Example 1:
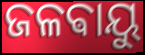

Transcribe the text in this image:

ଜଳଵାୟୁ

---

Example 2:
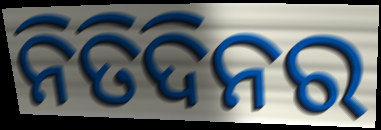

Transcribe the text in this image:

ନିତିଦିନର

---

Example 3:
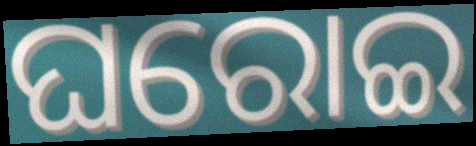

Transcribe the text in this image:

ଘରୋଇ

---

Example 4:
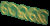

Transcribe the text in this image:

ଦେଇଛେ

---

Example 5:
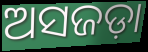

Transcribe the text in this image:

ଅସଜଡ଼ା